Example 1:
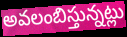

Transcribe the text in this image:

అవలంబిస్తున్నట్లు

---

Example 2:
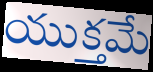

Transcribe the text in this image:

యుక్తమే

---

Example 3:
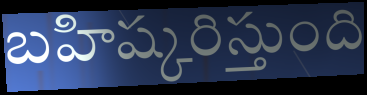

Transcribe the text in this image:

బహిష్కరిస్తుంది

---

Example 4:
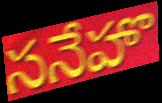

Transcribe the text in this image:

సనేహొ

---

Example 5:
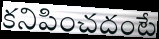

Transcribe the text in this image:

కనిపించదంటే